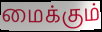
மைக்கும்